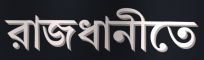
রাজধানীতে